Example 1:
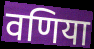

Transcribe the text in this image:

वणिया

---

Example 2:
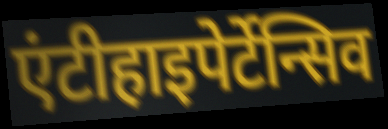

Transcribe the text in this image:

एंटीहाइपेर्टेन्सिव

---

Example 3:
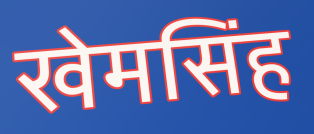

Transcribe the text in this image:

खेमसिंह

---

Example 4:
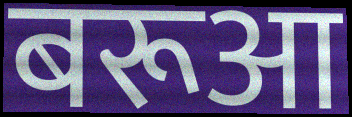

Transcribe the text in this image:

बरूआ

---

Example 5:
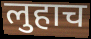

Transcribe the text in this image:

लुहाच